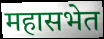
महासभेत